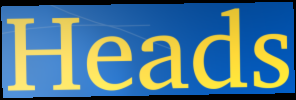
Heads